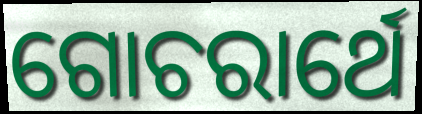
ଗୋଚରାର୍ଥେ